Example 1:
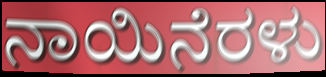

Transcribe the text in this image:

ನಾಯಿನೆರಳು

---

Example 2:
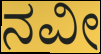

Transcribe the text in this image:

ನವೀ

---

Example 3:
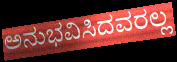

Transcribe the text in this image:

ಅನುಭವಿಸಿದವರಲ್ಲ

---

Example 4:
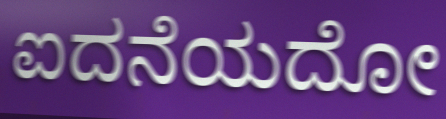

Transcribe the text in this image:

ಐದನೆಯದೋ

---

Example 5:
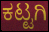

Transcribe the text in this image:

ಕಟ್ಟಗಿ